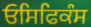
ਓਸਿਫਿਕੰਸ